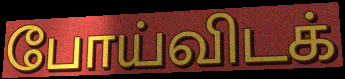
போய்விடக்